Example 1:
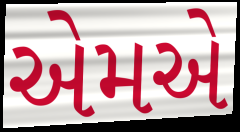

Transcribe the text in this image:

એમએ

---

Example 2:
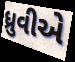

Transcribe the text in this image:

ધ્રુવીએ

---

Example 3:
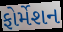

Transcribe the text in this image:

ફોર્મેશન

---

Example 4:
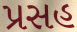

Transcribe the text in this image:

પ્રસહ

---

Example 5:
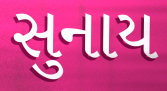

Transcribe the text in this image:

સુનાય